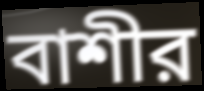
বাশীর